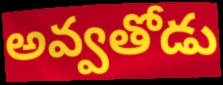
అవ్వతోడు